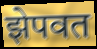
झेपवत